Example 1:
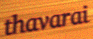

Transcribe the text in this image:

thavarai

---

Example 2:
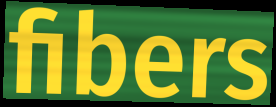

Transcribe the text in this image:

fibers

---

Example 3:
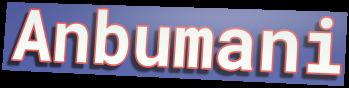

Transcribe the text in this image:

Anbumani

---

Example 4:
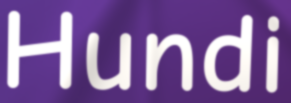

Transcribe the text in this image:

Hundi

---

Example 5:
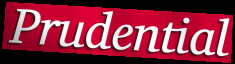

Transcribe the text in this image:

Prudential